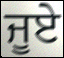
ਜੂਏ